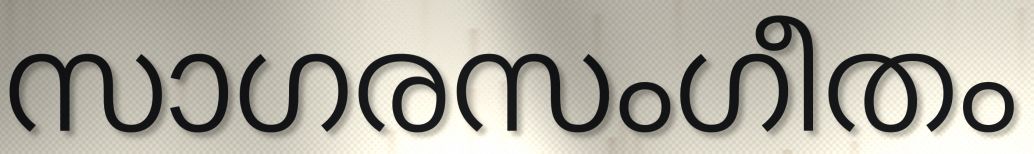
സാഗരസംഗീതം